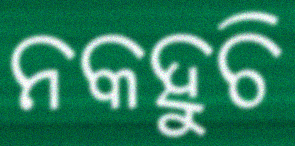
ନକହୁଚି